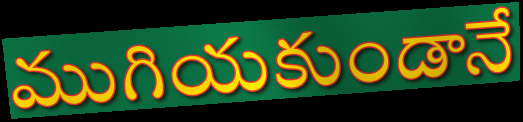
ముగియకుండానే